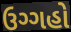
ઉગ્ગહો